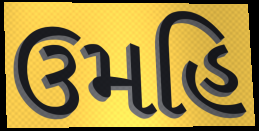
ઉમહિ